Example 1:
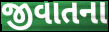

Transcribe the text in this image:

જીવાતના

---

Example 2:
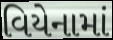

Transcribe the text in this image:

વિયેનામાં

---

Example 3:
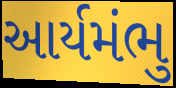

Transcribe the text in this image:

આર્યમંભુ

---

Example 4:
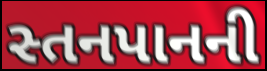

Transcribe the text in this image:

સ્તનપાનની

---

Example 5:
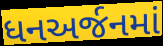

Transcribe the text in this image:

ધનઅર્જનમાં